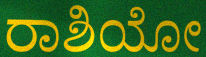
ರಾಶಿಯೋ